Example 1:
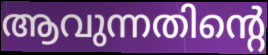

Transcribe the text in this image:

ആവുന്നതിന്റെ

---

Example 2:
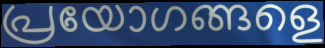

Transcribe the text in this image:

പ്രയോഗങ്ങളെ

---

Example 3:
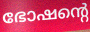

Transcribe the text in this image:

ഭോഷന്റെ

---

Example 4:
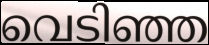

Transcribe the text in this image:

വെടിഞ്ഞ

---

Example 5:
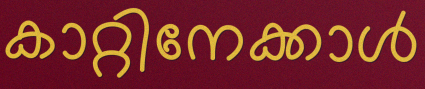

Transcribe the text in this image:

കാറ്റിനേക്കാൾ